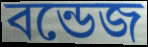
বন্ডেজ